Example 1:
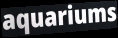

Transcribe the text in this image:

aquariums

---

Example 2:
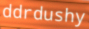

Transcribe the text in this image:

ddrdushy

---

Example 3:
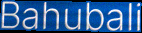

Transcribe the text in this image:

Bahubali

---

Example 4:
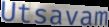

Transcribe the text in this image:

Utsavam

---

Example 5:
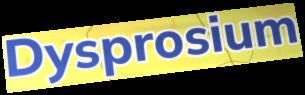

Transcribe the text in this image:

Dysprosium